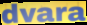
dvara